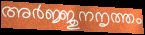
അർജ്ജുനനൃത്തം